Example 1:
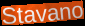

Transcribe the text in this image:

Stavano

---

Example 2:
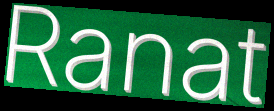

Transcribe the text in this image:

Ranat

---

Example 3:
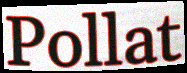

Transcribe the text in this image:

Pollat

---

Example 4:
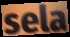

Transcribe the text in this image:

sela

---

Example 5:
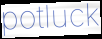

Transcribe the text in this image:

potluck